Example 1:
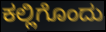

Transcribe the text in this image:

ಕಲ್ಲಿಗೊಂದು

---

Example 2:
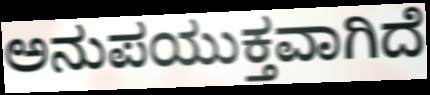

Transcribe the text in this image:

ಅನುಪಯುಕ್ತವಾಗಿದೆ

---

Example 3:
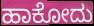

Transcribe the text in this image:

ಹಾಕೋದು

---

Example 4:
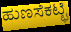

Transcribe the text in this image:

ಹುಣಸೆಕಟ್ಟೆ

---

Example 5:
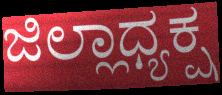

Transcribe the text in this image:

ಜಿಲ್ಲಾಧ್ಯಕ್ಷ